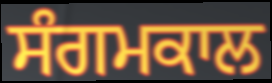
ਸੰਗਮਕਾਲ